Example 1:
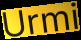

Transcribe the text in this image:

Urmi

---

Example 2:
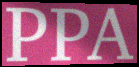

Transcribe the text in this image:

PPA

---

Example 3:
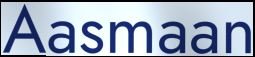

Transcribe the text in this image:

Aasmaan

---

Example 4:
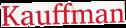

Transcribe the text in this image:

Kauffman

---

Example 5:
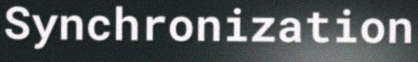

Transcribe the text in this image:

Synchronization